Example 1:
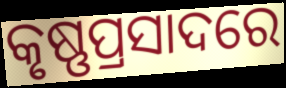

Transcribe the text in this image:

କୃଷ୍ଣପ୍ରସାଦରେ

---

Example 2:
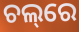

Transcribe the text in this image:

ଚଲ୍‌ରେ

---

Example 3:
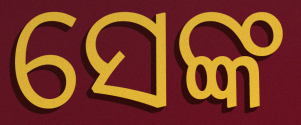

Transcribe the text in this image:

ସେଙ୍କ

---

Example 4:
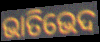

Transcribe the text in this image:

ଭାତିଭେଦ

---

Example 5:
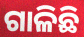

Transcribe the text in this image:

ଗାଳିଛି